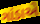
ગાંડાએ